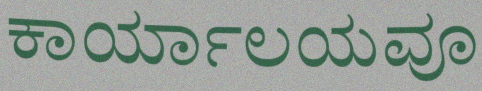
ಕಾರ್ಯಾಲಯವೂ